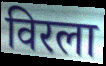
विरला